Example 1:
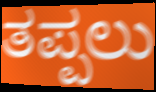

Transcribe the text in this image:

ತಪ್ಪಲು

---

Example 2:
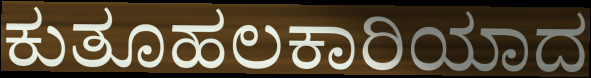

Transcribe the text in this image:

ಕುತೂಹಲಕಾರಿಯಾದ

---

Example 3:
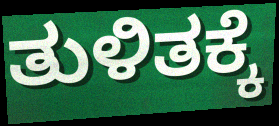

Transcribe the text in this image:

ತುಳಿತಕ್ಕೆ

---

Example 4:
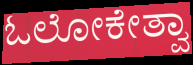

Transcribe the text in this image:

ಓಲೋಕೇತ್ವಾ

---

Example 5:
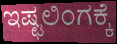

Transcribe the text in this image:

ಇಷ್ಟಲಿಂಗಕ್ಕೆ